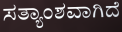
ಸತ್ಯಾಂಶವಾಗಿದೆ